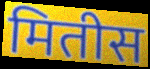
मितीस